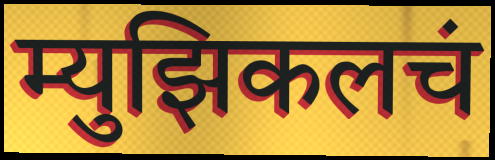
म्युझिकलचं